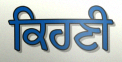
ਕਿਹਣੀ